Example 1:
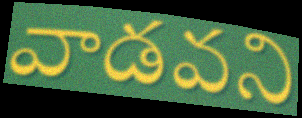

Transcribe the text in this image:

వాడవని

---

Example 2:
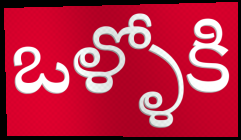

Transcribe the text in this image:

ఒళ్ళోకి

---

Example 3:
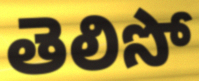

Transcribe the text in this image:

తెలిసో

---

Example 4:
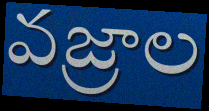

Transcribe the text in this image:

వజ్రాల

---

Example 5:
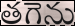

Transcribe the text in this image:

తగెను